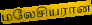
மலேசியரான